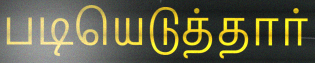
படியெடுத்தார்